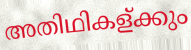
അതിഥികള്ക്കും